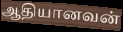
ஆதியானவன்